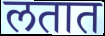
लतात